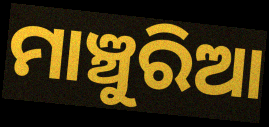
ମାଞ୍ଚୁରିଆ